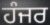
ਹੰਜਰ